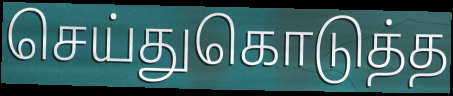
செய்துகொடுத்த